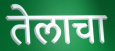
तेलाचा